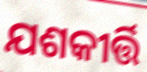
ଯଶକୀର୍ତ୍ତି